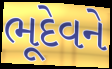
ભૂદેવને